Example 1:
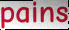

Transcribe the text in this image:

pains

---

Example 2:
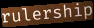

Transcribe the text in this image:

rulership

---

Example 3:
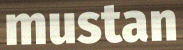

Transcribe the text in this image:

mustan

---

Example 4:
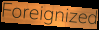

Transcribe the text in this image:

Foreignized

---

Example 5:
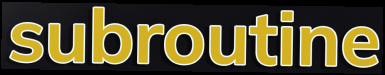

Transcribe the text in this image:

subroutine